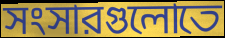
সংসারগুলোতে